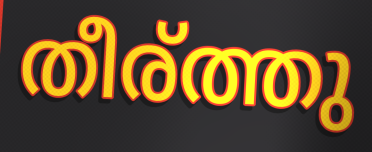
തീര്ത്തു